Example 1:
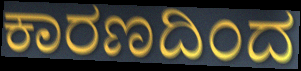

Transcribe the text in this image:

ಕಾರಣದಿಂದ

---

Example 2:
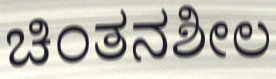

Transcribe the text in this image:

ಚಿಂತನಶೀಲ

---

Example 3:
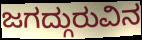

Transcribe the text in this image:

ಜಗದ್ಗುರುವಿನ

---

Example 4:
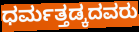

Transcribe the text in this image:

ಧರ್ಮತ್ತಡ್ಕದವರು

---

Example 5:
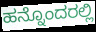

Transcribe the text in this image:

ಹನ್ನೊಂದರಲ್ಲಿ